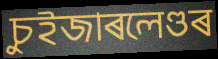
চুইজাৰলেণ্ডৰ